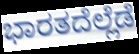
ಭಾರತದೆಲ್ಲೆಡೆ